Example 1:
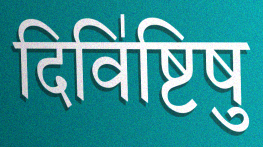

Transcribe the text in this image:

दिवि॑ष्टिषु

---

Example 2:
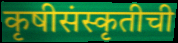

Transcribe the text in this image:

कृषीसंस्कृतीची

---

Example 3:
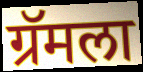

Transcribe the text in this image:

ग्रॅमला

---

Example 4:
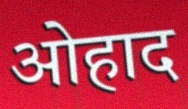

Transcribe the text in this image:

ओहाद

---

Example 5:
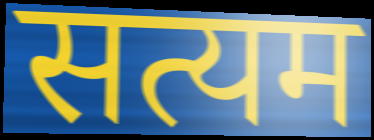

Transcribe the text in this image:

सत्यम